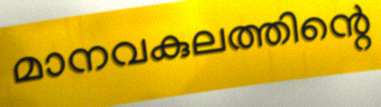
മാനവകുലത്തിന്റെ